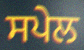
ਸਪੇਲ